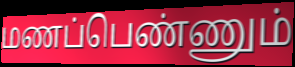
மணப்பெண்ணும்